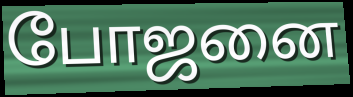
போஜனை